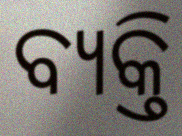
ବ୍ୟକ୍ତି